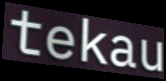
tekau